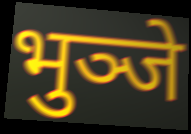
भुञ्जे